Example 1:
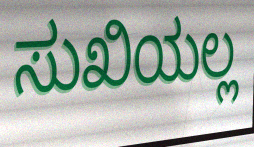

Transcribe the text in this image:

ಸುಖಿಯಲ್ಲ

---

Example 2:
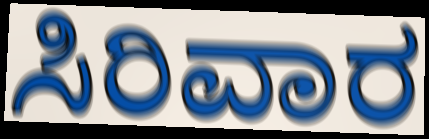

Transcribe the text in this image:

ಸಿರಿವಾರ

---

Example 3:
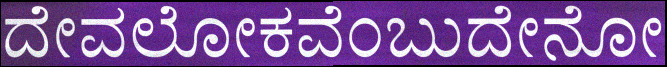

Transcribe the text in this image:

ದೇವಲೋಕವೆಂಬುದೇನೋ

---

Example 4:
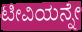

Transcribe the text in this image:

ಟೀವಿಯನ್ನೇ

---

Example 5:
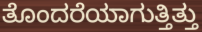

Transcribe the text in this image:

ತೊಂದರೆಯಾಗುತ್ತಿತ್ತು